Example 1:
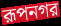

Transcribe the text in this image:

রূপনগর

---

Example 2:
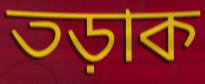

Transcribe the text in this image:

তড়াক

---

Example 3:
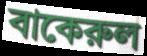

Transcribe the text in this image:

বাকেরুল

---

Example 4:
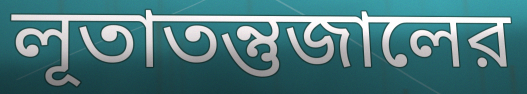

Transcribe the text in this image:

লূতাতন্তুজালের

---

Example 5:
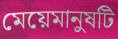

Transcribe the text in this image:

মেয়েমানুষটি